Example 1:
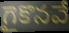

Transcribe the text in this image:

గైకొనవే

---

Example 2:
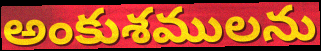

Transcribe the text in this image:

అంకుశములను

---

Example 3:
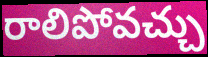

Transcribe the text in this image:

రాలిపోవచ్చు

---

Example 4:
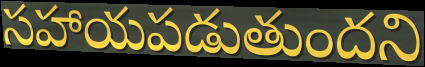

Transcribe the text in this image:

సహాయపడుతుందని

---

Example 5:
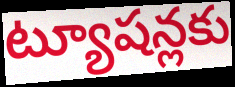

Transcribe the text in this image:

ట్యూషన్లకు